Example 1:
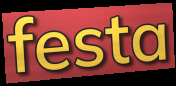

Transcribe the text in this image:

festa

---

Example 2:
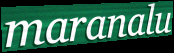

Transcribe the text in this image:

maranalu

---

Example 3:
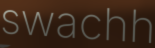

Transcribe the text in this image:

swachh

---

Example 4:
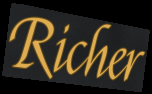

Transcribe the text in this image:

Richer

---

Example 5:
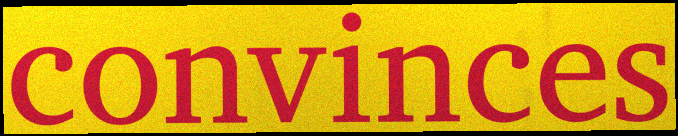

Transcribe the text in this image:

convinces